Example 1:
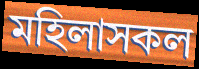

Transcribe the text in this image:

মহিলাসকল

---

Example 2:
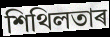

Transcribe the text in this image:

শিথিলতাৰ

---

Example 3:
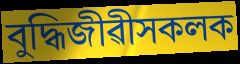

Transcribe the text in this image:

বুদ্ধিজীৱীসকলক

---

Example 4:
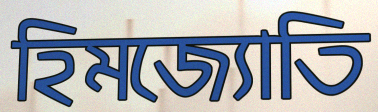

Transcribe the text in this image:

হিমজ্যোতি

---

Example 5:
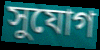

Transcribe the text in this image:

সুযোগ